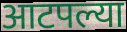
आटपल्या